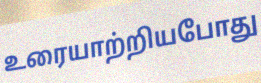
உரையாற்றியபோது